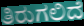
ತಿರುಗಲಿದೆ